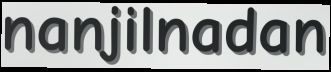
nanjilnadan